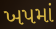
ખપમાં